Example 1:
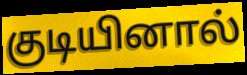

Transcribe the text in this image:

குடியினால்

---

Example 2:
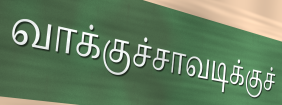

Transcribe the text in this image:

வாக்குச்சாவடிக்குச்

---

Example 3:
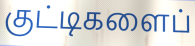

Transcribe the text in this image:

குட்டிகளைப்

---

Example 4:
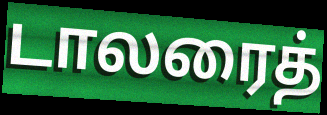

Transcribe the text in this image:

டாலரைத்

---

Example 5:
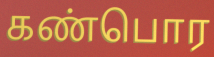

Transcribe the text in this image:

கண்பொர